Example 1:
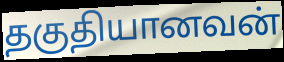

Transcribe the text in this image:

தகுதியானவன்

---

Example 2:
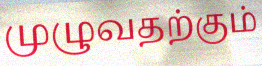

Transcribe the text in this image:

முழுவதற்கும்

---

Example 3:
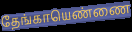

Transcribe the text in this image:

தேங்காயெண்ணை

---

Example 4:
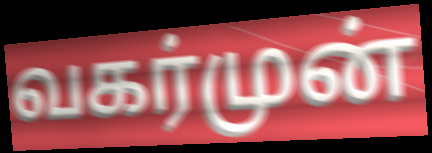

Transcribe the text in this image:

வகர்முன்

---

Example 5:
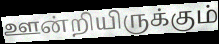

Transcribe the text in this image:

ஊன்றியிருக்கும்